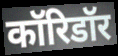
कॉरिडॉर